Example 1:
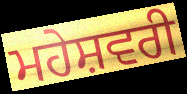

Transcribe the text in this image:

ਮਹੇਸ਼ਵਰੀ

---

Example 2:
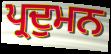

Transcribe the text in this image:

ਪ੍ਰਦੁਮਨ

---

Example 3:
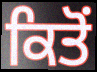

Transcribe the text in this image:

ਕਿਤੋਂ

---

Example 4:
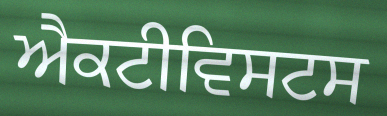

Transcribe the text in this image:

ਐਕਟੀਵਿਸਟਸ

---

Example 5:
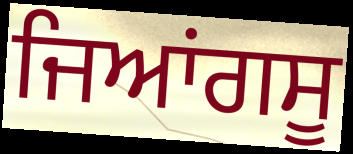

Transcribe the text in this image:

ਜਿਆਂਗਸੂ